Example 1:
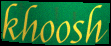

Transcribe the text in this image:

khoosh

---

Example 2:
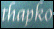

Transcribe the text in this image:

thapko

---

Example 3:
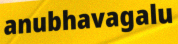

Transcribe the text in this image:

anubhavagalu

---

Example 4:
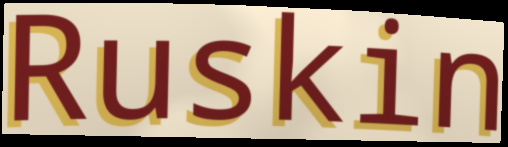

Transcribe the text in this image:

Ruskin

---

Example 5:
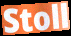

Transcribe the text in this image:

Stoll